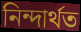
নিন্দাৰ্থত